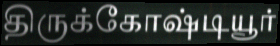
திருக்கோஷ்டியூர்